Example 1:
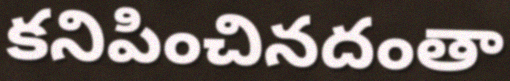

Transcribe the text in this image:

కనిపించినదంతా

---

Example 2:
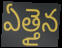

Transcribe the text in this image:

ఏత్తైన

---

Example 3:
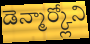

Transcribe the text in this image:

డెన్మార్క్లోని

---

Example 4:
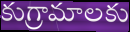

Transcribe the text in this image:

కుగ్రామాలకు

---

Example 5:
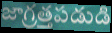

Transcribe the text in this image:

జాగ్రత్తపడుడి